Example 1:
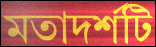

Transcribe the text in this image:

মতাদর্শটি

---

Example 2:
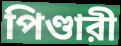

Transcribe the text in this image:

পিণ্ডারী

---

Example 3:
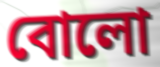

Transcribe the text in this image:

বোলো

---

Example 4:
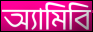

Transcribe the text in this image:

অ্যামিবি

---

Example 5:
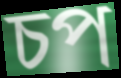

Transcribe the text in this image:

চপ